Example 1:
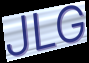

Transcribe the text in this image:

JLG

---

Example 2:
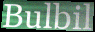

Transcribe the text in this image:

Bulbil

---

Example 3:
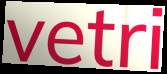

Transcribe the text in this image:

vetri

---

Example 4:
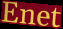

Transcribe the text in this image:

Enet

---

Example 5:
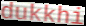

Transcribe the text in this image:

dukkhi